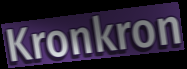
Kronkron